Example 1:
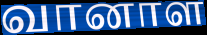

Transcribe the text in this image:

வானாள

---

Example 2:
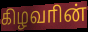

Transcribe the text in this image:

கிழவரின்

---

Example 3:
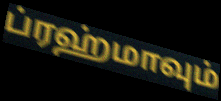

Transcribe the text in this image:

ப்ரஹ்மாவும்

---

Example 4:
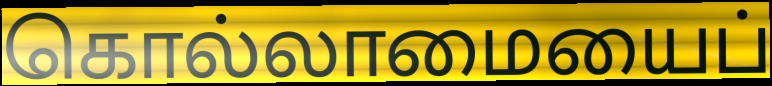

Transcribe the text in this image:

கொல்லாமையைப்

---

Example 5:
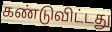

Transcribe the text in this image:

கண்டுவிட்டது